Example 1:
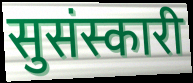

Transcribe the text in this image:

सुसंस्कारी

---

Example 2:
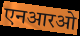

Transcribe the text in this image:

एनआरओ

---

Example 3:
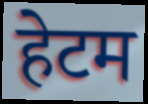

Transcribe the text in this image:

हेटम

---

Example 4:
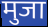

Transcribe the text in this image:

मुजा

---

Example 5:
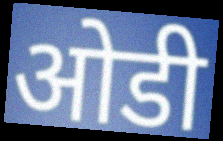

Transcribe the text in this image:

ओडी